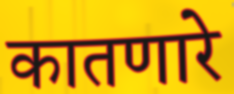
कातणारे